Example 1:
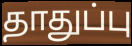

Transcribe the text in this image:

தாதுப்பு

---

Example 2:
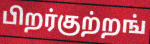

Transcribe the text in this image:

பிறர்குற்றங்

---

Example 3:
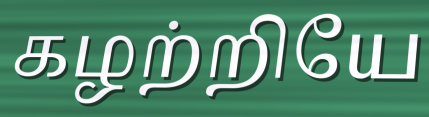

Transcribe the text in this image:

கழற்றியே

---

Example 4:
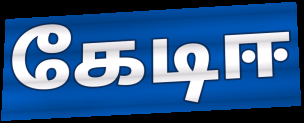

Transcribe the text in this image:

கேடிஈ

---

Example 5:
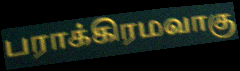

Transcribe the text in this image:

பராக்கிரமவாகு